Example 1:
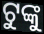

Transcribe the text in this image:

ଟୁଙ୍କୁ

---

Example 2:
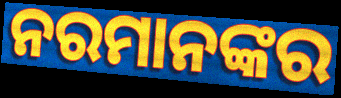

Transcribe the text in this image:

ନରମାନଙ୍କର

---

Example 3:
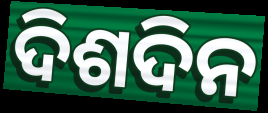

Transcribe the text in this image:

ଦିଶଦିନ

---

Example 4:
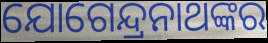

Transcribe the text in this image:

ଯୋଗେନ୍ଦ୍ରନାଥଙ୍କର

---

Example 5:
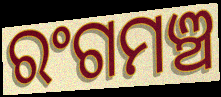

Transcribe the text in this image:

ରଂଗମଞ୍ଚ